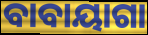
ବାବାୟାଗା